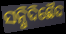
ସନ୍ଧିଦିଛୈଦ